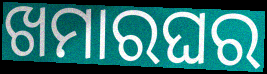
ଖମାରଘର